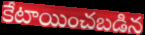
కేటాయించబడిన